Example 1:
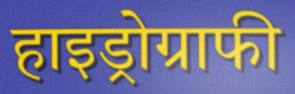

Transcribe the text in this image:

हाइड्रोग्राफी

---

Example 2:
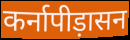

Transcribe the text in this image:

कर्नापीड़ासन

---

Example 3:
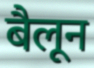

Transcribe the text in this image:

बैलून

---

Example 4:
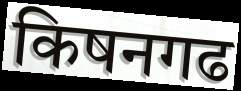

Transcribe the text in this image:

किषनगढ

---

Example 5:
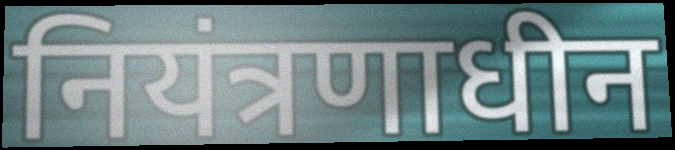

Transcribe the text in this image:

नियंत्रणाधीन